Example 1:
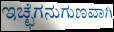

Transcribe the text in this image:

ಇಚ್ಛೆಗನುಗುಣವಾಗಿ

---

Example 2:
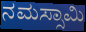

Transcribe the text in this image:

ನಮಸ್ಸಾಮಿ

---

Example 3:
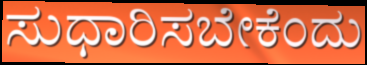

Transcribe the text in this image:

ಸುಧಾರಿಸಬೇಕೆಂದು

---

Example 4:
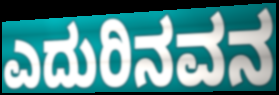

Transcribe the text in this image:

ಎದುರಿನವನ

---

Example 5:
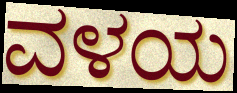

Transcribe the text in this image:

ವಳಯ